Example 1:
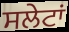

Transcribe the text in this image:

ਸਲੇਟਾਂ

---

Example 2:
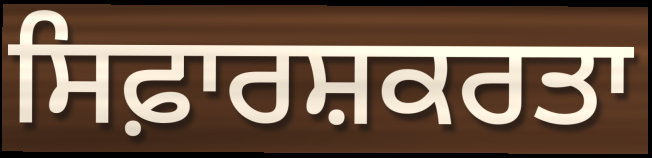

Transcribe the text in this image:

ਸਿਫ਼ਾਰਸ਼ਕਰਤਾ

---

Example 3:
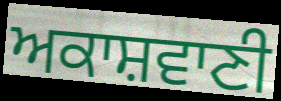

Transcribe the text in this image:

ਅਕਾਸ਼ਵਾਣੀ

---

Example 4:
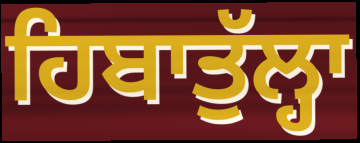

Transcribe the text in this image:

ਹਿਬਾਤੁੱਲ੍ਹਾ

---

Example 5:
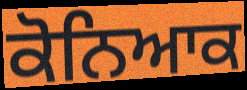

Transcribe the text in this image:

ਕੋਨਿਆਕ